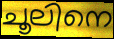
ചൂലിനെ